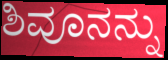
ಶಿವೂನನ್ನು